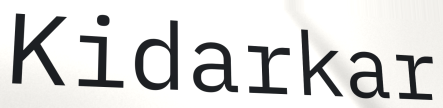
Kidarkar